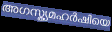
അഗസ്ത്യമഹർഷിയെ